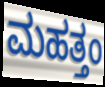
ಮಹತ್ತಂ